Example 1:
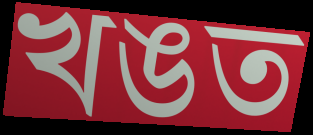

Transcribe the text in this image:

খঙত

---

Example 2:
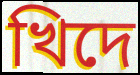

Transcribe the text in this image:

খিদে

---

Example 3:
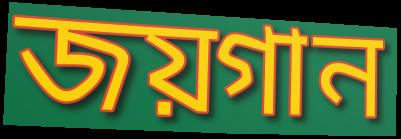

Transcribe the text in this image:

জয়গান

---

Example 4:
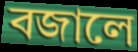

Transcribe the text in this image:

বজালে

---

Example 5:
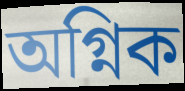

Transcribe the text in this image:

অগ্নিক